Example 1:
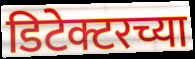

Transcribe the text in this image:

डिटेक्टरच्या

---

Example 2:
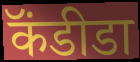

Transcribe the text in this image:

कॅंडीडा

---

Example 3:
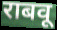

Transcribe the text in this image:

राबवू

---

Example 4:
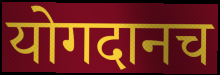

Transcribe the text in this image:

योगदानच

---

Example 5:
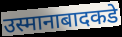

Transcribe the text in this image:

उस्मानाबादकडे